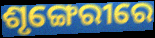
ଶୃଙ୍ଗେରୀରେ